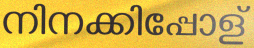
നിനക്കിപ്പോള്